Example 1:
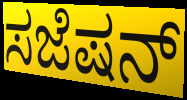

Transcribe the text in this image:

ಸಜೆಷನ್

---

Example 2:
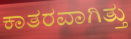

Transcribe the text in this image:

ಕಾತರವಾಗಿತ್ತು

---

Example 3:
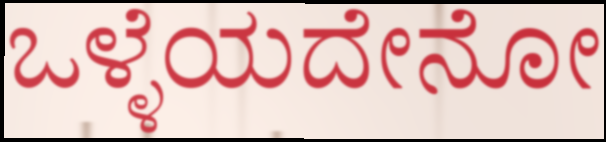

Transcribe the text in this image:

ಒಳ್ಳೆಯದೇನೋ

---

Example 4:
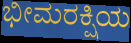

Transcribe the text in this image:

ಭೀಮರಕ್ಷಿಯ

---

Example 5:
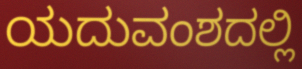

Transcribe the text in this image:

ಯದುವಂಶದಲ್ಲಿ